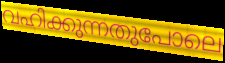
വഹിക്കുന്നതുപോലെ